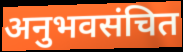
अनुभवसंचित